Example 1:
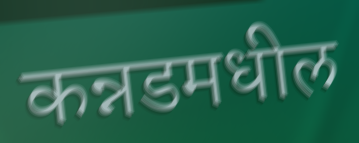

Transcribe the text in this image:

कन्नडमधील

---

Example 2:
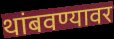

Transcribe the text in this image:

थांबवण्यावर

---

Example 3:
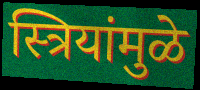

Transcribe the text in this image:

स्त्रियांमुळे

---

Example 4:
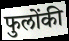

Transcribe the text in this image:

फुलोंकी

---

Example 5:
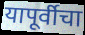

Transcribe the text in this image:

यापूर्वीचा